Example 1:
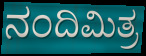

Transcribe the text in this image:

ನಂದಿಮಿತ್ರ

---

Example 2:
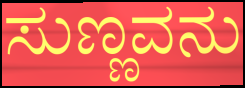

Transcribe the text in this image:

ಸುಣ್ಣವನು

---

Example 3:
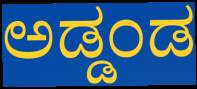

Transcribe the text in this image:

ಅಡ್ಡಂಡ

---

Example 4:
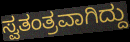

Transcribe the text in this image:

ಸ್ವತಂತ್ರವಾಗಿದ್ದು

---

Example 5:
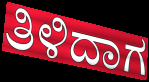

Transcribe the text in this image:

ತಿಳಿದಾಗ